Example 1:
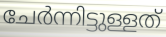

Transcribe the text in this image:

ചേർന്നിട്ടുള്ളത്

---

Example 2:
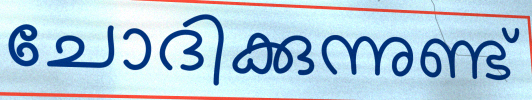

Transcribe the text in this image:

ചോദിക്കുന്നുണ്ട്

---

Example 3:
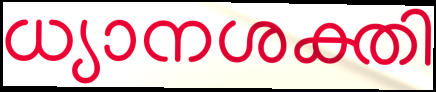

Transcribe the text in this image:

ധ്യാനശക്തി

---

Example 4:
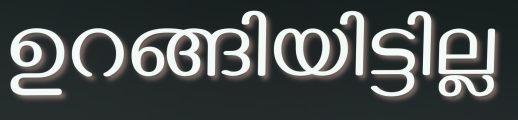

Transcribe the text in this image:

ഉറങ്ങിയിട്ടില്ല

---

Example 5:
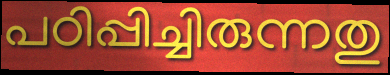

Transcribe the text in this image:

പഠിപ്പിച്ചിരുന്നതു